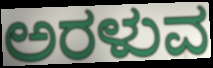
ಅರಳುವ